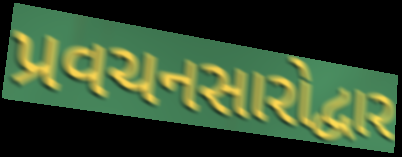
પ્રવચનસારોદ્વાર